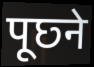
पूछ्ने